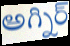
అగ్నిర్